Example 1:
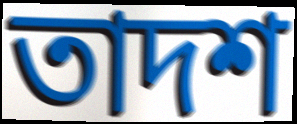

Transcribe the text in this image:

তাদশ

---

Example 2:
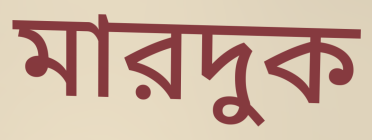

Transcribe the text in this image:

মারদুক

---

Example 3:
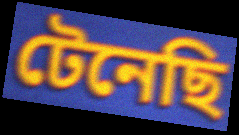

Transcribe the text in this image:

টেনেছি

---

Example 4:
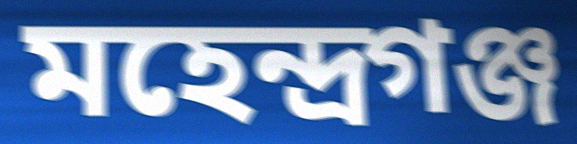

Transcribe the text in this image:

মহেন্দ্রগঞ্জ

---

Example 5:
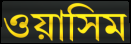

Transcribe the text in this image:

ওয়াসিম